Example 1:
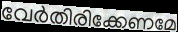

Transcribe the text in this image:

വേർതിരിക്കേണമേ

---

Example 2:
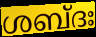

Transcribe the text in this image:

ശബ്ദഃ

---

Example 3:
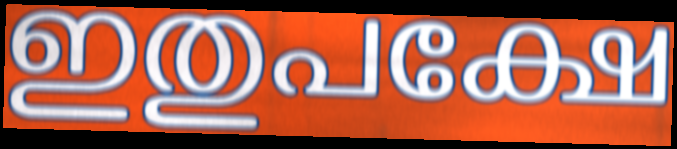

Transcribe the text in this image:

ഇതുപക്ഷേ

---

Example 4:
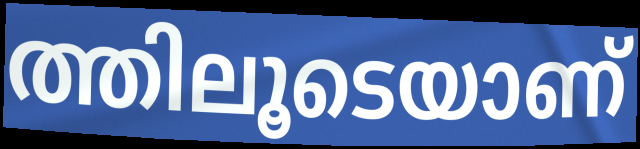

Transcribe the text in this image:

ത്തിലൂടെയാണ്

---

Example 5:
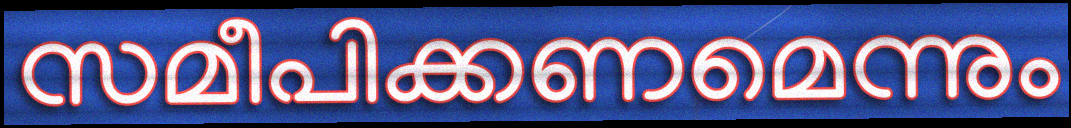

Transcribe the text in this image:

സമീപിക്കണമെന്നും